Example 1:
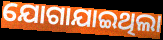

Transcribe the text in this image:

ଯୋଗାଯାଇଥିଲା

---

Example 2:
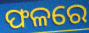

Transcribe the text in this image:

ଫଳରେ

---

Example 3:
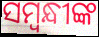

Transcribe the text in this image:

ସମ୍ବନ୍ଧୀଙ୍କ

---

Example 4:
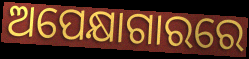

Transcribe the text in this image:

ଅପେକ୍ଷାଗାରରେ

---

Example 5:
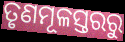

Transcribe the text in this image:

ତୃଣମୂଳସ୍ତରରୁ